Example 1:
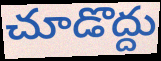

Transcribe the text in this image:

చూడొద్దు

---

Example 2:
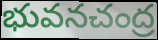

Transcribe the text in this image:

భువనచంద్ర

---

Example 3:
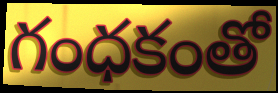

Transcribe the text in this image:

గంధకంతో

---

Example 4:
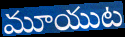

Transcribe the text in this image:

మూయుట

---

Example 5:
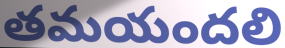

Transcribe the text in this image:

తమయందలి